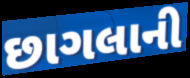
છાગલાની